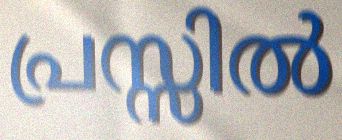
പ്രസ്സിൽ